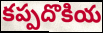
కప్పదొకియ